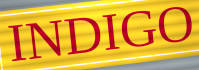
INDIGO